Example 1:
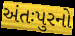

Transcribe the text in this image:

અંતઃપુરનો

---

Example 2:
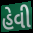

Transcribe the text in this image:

હેવી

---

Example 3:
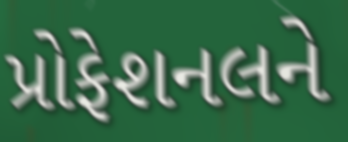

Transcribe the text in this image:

પ્રોફેશનલને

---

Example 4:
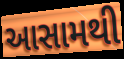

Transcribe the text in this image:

આસામથી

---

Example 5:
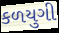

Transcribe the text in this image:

કળયુગી